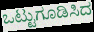
ಒಟ್ಟುಗೂಡಿಸಿದ